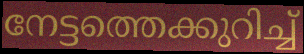
നേട്ടത്തെക്കുറിച്ച്